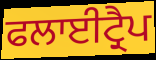
ਫਲਾਈਟ੍ਰੈਪ